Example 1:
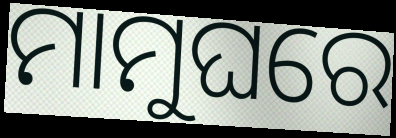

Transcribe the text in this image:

ମାମୁଘରେ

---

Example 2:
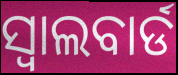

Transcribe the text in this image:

ସ୍ୱାଲବାର୍ଡ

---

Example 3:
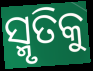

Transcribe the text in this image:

ସ୍ମୃତିକୁ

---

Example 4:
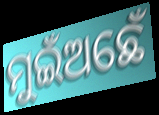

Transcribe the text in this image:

ମୁଇଁଅଛେଁ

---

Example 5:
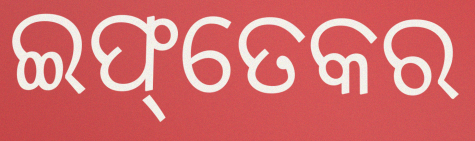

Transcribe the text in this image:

ଇଫ୍‌ତେକର